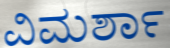
ವಿಮರ್ಶಾ